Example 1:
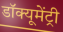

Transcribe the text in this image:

डॉक्‍यूमेंट्री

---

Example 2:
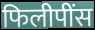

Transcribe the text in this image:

फिलीपींस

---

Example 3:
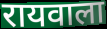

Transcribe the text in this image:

रायवाला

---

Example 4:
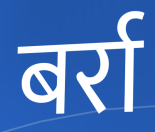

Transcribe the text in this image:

बर्रा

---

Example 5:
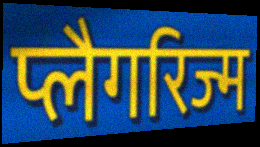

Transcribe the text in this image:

प्लैगरिज्म